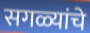
सगळ्यांचे